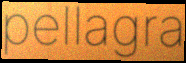
pellagra